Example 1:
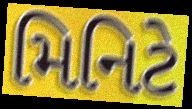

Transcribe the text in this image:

મિનિટે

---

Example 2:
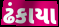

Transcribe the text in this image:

ઢંકાયા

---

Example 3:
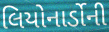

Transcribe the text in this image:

લિયોનાર્ડોની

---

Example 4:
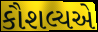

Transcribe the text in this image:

કૌશલ્યએ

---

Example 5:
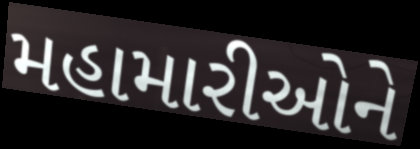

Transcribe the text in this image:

મહામારીઓને